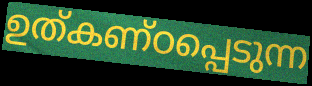
ഉത്കണ്ഠപ്പെടുന്ന